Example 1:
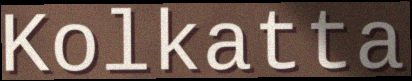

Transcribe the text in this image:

Kolkatta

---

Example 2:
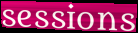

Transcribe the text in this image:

sessions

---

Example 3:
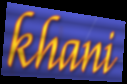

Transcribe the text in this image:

khani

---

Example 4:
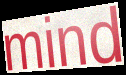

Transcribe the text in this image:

mind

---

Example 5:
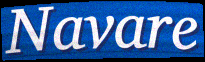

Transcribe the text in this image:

Navare